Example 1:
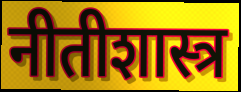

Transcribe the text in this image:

नीतीशास्त्र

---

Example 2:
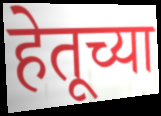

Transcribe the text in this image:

हेतूच्या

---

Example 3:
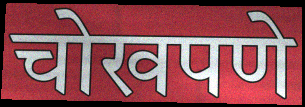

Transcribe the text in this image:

चोखपणे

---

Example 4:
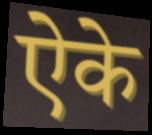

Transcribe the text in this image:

ऐके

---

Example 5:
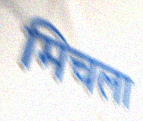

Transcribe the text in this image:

मिचला